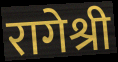
रागेश्री